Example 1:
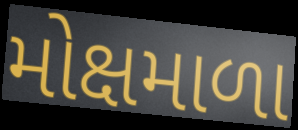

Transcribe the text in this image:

મોક્ષમાળા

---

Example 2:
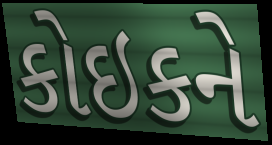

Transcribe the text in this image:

કોઇકને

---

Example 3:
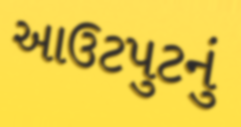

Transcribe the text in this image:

આઉટપુટનું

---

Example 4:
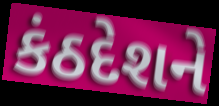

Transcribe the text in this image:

કંઠદેશને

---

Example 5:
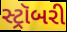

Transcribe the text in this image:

સ્ટ્રૉબરી